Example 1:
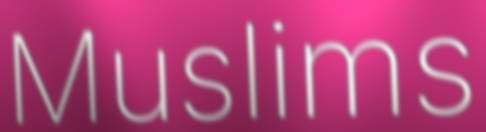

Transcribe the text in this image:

Muslims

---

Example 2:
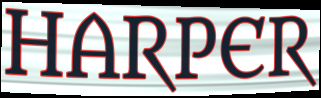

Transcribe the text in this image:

HARPER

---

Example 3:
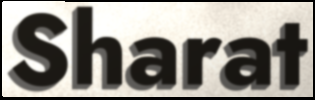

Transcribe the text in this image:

Sharat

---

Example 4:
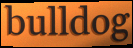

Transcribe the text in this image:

bulldog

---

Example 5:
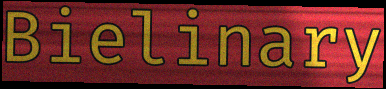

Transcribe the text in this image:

Bielinary